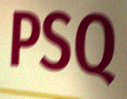
PSQ